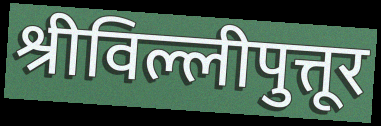
श्रीविल्लीपुत्तूर